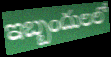
ఇబ్బందులలో